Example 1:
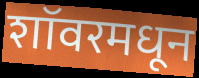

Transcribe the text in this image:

शॉवरमधून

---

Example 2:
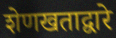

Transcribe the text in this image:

शेणखताद्वारे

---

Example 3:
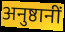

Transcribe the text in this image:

अनुष्ठानीं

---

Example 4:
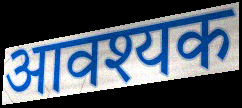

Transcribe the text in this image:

आवश्‍यक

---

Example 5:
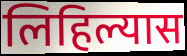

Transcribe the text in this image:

लिहिल्यास